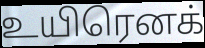
உயிரெனக்